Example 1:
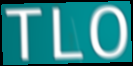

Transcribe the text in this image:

TLO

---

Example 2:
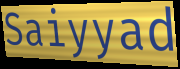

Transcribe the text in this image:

Saiyyad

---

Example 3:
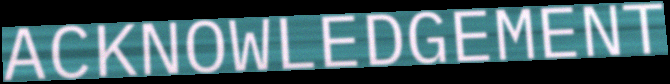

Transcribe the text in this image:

ACKNOWLEDGEMENT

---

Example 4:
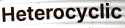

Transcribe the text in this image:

Heterocyclic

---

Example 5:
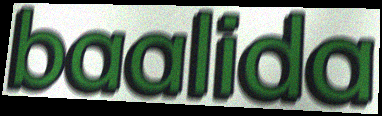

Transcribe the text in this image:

baalida